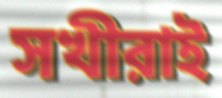
সখীরাই